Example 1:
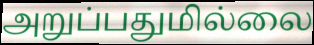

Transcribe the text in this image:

அறுப்பதுமில்லை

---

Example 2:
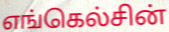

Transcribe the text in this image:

எங்கெல்சின்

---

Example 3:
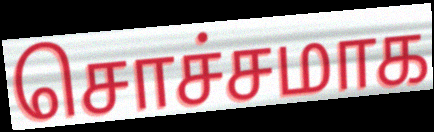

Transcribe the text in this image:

சொச்சமாக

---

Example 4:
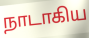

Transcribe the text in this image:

நாடாகிய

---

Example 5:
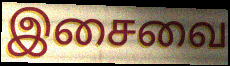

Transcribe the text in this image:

இசைவை